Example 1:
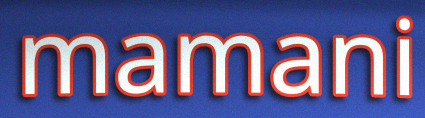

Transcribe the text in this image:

mamani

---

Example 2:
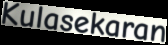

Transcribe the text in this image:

Kulasekaran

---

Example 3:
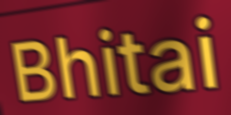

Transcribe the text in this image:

Bhitai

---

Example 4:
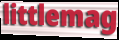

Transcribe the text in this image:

littlemag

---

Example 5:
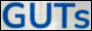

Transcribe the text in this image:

GUTs